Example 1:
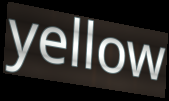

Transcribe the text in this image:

yellow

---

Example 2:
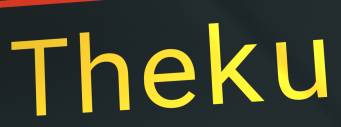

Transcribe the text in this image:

Theku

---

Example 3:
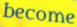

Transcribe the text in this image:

become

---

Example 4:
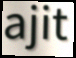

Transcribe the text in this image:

ajit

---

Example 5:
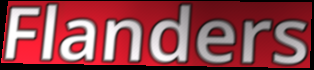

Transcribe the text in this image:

Flanders